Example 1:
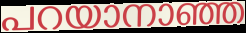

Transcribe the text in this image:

പറയാനാഞ്ഞ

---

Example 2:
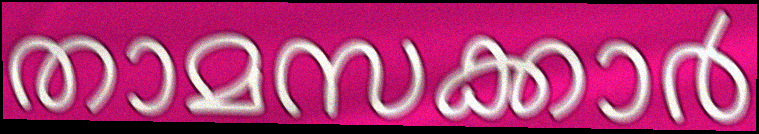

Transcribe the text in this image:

താമസക്കാർ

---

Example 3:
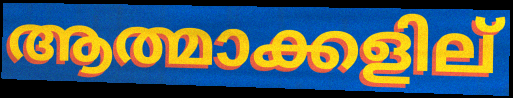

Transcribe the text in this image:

ആത്മാക്കളില്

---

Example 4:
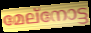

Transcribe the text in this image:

മേല്നോട്ട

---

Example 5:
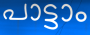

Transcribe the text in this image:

പാട്ടാം